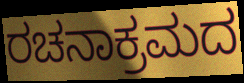
ರಚನಾಕ್ರಮದ